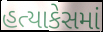
હત્યાકેસમાં